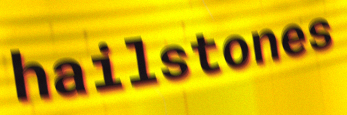
hailstones